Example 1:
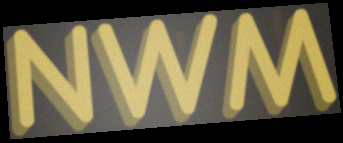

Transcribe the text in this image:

NWM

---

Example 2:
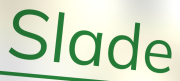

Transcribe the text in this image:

Slade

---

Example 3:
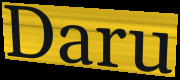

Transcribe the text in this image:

Daru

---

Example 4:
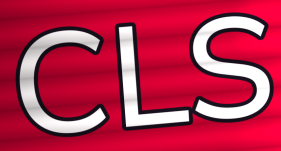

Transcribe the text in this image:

CLS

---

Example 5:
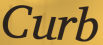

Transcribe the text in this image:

Curb